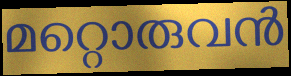
മറ്റൊരുവൻ